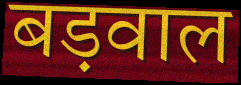
बड़वाल